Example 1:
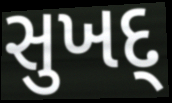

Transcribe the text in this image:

સુખદ્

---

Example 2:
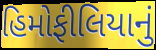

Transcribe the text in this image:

હિમોફીલિયાનું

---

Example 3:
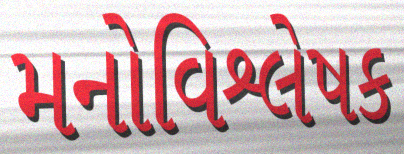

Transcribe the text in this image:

મનોવિશ્લેષક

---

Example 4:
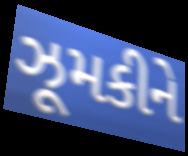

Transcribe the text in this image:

ઝૂમકીને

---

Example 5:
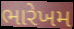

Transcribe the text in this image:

ભારેખમ